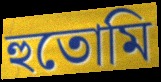
হুতোমি